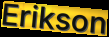
Erikson